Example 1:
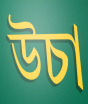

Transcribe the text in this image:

উচা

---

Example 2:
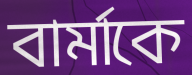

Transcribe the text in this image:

বার্মাকে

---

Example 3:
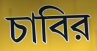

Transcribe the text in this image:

চাবির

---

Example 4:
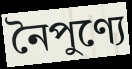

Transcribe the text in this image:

নৈপুণ্যে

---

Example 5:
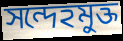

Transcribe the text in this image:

সন্দেহমুক্ত